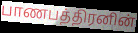
பாணபத்திரனின்